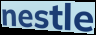
nestle